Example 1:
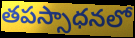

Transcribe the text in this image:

తపస్సాధనలో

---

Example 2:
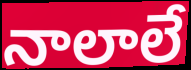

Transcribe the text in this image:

నాలాలే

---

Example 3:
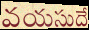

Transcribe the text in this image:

వయసుదే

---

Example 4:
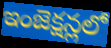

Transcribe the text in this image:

ఇంజెక్షన్లలో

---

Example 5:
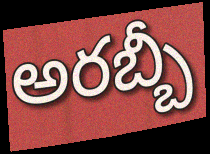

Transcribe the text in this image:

అరబ్బీ